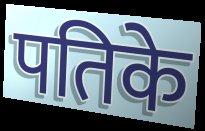
पतिके